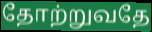
தோற்றுவதே